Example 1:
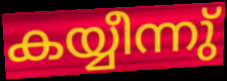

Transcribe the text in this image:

കയ്യീന്നു്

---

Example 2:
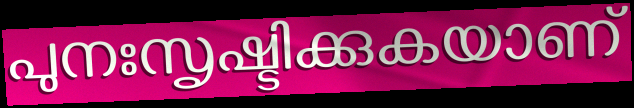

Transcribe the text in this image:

പുനഃസൃഷ്ടിക്കുകയാണ്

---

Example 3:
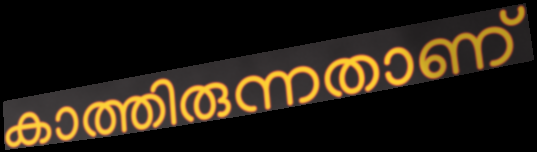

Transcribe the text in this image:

കാത്തിരുന്നതാണ്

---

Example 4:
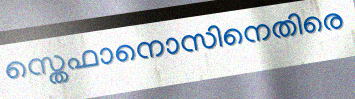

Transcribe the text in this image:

സ്തെഫാനൊസിനെതിരെ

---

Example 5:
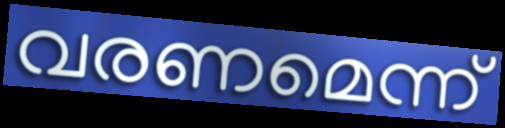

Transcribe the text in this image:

വരണമെന്ന്